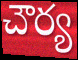
చౌర్య